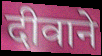
दीवाने